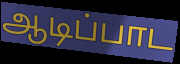
ஆடிப்பாட